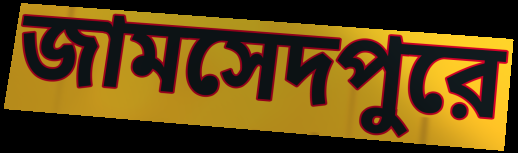
জামসেদপুরে